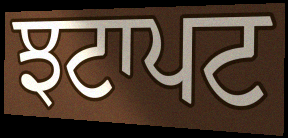
ਝਟਾਪਟ